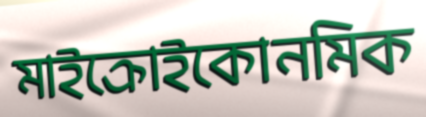
মাইক্রোইকোনমিক